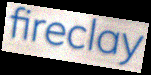
fireclay